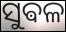
ସୁଵଳ